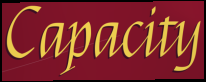
Capacity